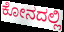
ಕೋನದಲ್ಲಿ